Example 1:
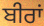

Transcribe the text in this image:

ਬੀਰਾਂ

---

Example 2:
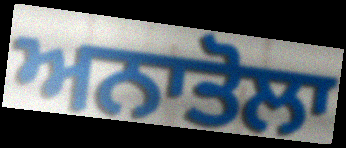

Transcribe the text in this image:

ਅਨਾਤੋਲਾ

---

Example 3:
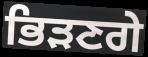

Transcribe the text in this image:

ਭਿੜਣਗੇ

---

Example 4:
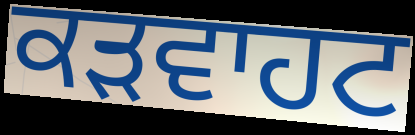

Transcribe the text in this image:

ਕੜਵਾਹਟ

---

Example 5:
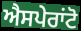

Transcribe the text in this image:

ਐਸਪੇਰਾਂਟੋ